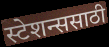
स्टेशन्ससाठी